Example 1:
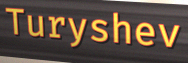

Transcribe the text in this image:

Turyshev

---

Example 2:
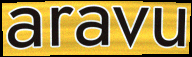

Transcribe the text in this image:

aravu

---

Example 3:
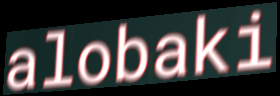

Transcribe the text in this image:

alobaki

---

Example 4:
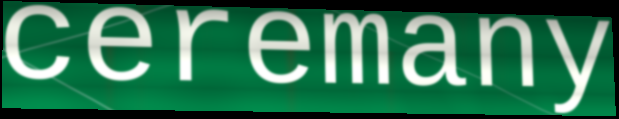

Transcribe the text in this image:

ceremany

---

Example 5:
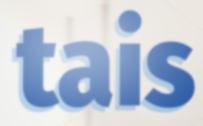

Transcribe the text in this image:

tais